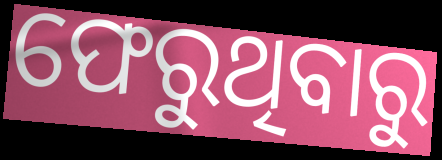
ଫେରୁଥିବାରୁ